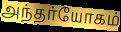
அந்தர்யோகம்